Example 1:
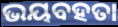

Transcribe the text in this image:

ଭୟବହତା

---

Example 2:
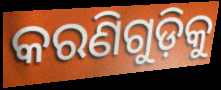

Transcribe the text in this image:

କରଣିଗୁଡ଼ିକୁ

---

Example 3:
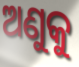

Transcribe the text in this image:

ଅଣୁକୁ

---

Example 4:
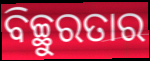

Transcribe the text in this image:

ବିଚ୍ଛୁରତାର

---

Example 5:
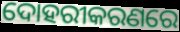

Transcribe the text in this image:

ଦୋହରୀକରଣରେ